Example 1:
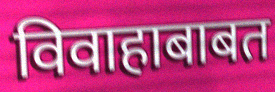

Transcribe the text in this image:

विवाहाबाबत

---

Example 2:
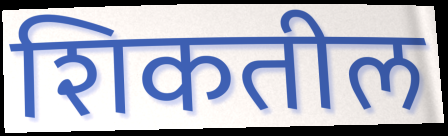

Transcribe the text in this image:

शिकतील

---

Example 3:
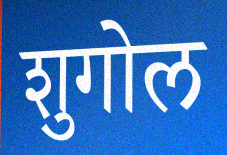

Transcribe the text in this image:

शुगोल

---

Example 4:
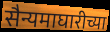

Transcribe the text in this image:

सैन्यमाघारीच्या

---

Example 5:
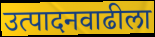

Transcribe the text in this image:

उत्पादनवाढीला